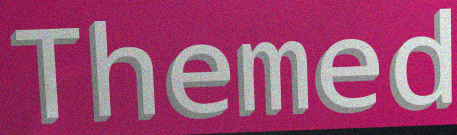
Themed